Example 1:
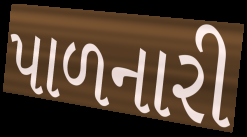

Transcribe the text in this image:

પાળનારી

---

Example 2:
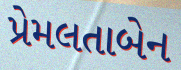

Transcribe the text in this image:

પ્રેમલતાબેન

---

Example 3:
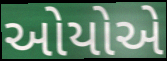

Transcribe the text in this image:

ઓયોએ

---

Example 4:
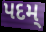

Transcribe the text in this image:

પદમ્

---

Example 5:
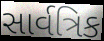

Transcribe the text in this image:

સાર્વત્રિક